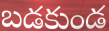
బడకుండ